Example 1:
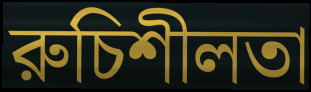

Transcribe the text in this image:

রুচিশীলতা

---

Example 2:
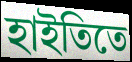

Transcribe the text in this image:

হাইতিতে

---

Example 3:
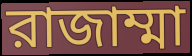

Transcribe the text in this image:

রাজাম্মা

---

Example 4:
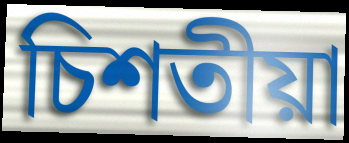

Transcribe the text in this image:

চিশতীয়া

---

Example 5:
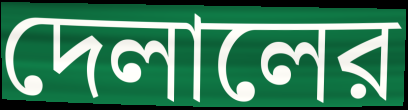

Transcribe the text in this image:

দেলালের